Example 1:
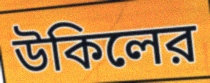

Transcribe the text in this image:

উকিলের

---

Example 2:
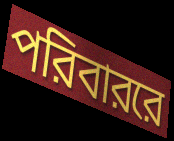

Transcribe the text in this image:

পরিবাররে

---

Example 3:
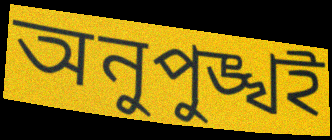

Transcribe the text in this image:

অনুপুঙ্খই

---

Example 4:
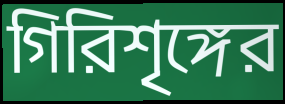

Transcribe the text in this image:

গিরিশৃঙ্গের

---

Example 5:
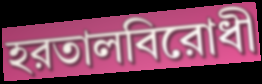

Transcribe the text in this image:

হরতালবিরোধী